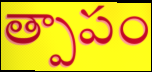
త్పాపం